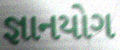
જ્ઞાનયોગ